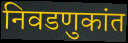
निवडणुकांत